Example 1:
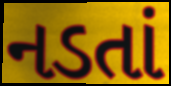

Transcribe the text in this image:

નડતાં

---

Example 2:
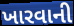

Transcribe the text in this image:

ખારવાની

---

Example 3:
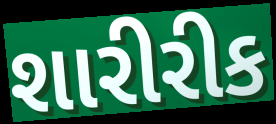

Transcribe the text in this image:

શારીરીક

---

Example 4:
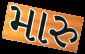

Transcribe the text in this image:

મારુ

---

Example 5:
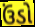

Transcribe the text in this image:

ઉંડો